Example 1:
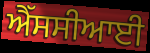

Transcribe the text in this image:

ਐੱਸਸੀਆਈ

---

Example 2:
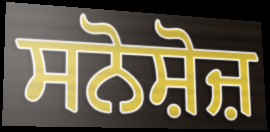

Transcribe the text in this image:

ਸਨੋਸ਼ੋਜ਼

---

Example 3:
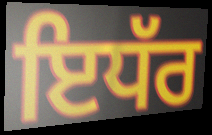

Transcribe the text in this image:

ਇਧੱਰ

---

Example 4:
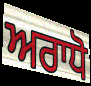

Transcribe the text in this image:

ਅਰਾਧੋ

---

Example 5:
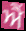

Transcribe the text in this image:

ਐਂ